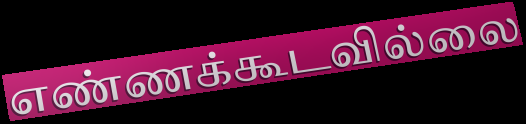
எண்ணக்கூடவில்லை